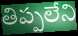
తిప్పలేని